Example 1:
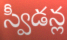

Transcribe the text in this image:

స్వీడన్ల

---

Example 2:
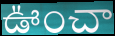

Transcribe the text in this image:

ఊంచా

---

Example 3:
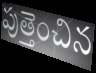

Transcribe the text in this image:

పుత్తెంచిన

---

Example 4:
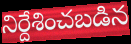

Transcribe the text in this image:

నిర్దేశించబడిన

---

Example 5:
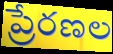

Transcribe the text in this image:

ప్రేరణల